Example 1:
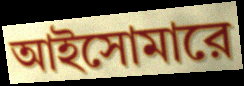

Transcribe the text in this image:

আইসোমারে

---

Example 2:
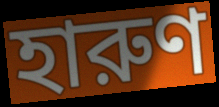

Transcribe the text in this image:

হারুণ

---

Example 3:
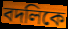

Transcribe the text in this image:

বদলিকে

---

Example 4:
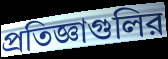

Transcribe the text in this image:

প্রতিজ্ঞাগুলির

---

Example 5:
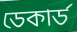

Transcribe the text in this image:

ডেকার্ড